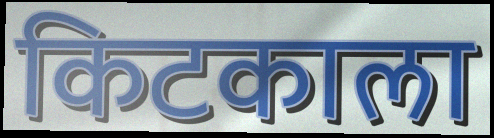
किटकाला